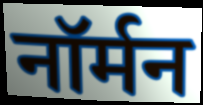
नॉर्मन